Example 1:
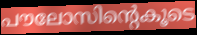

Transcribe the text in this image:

പൗലോസിന്റെകൂടെ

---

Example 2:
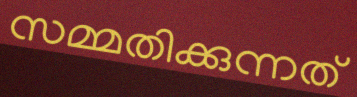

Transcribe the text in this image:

സമ്മതിക്കുന്നത്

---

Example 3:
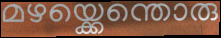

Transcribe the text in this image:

മഴയ്ക്കെന്തൊരു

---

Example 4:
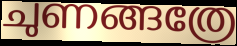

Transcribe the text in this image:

ചുണങ്ങത്രേ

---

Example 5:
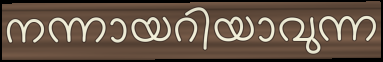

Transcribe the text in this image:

നന്നായറിയാവുന്ന